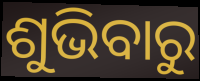
ଶୁଭିବାରୁ